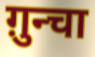
ग़ुन्चा